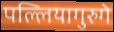
पल्लियागुरुगे